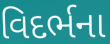
વિદર્ભના